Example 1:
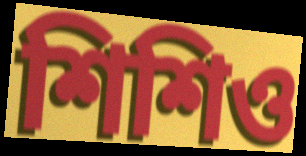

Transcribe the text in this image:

শিশিও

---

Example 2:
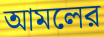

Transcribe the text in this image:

আমলের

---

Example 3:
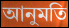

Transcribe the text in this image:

আনুমতি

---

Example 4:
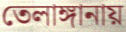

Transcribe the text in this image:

তেলাঙ্গানায়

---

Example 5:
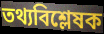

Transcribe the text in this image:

তথ্যবিশ্লেষক